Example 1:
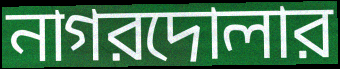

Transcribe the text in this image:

নাগরদোলার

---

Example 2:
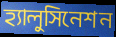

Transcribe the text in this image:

হ্যালুসিনেশন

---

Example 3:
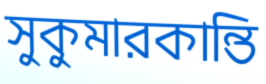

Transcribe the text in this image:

সুকুমারকান্তি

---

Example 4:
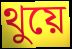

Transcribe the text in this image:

থুয়ে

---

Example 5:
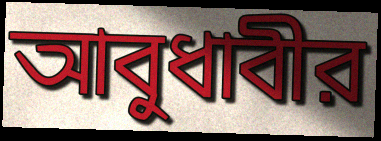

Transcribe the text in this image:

আবুধাবীর